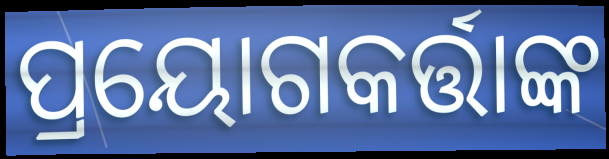
ପ୍ରୟୋଗକର୍ତ୍ତାଙ୍କ